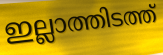
ഇല്ലാത്തിടത്ത്